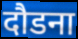
दौडना